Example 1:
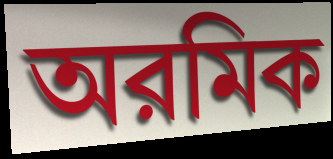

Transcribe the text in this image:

অরমিক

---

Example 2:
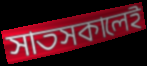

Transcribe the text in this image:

সাতসকালেই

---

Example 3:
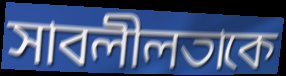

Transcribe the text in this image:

সাবলীলতাকে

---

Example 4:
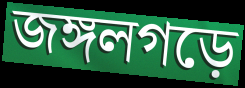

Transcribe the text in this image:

জঙ্গলগড়ে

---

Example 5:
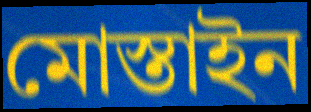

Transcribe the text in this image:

মোস্তাইন